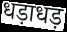
धड़ाधड़